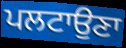
ਪਲਟਾਉਣਾ